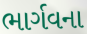
ભાર્ગવના